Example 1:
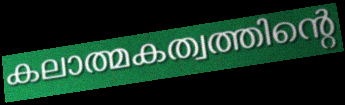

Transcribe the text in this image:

കലാത്മകത്വത്തിന്റെ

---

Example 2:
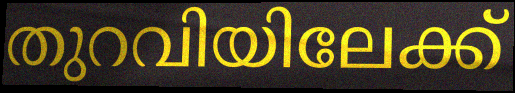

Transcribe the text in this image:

തുറവിയിലേക്ക്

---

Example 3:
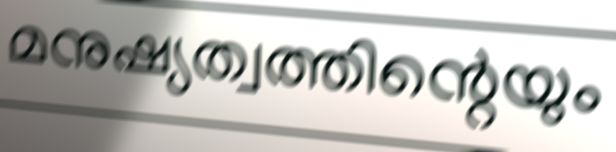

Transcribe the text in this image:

മനുഷ്യത്വത്തിന്റെയും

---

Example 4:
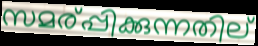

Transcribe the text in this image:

സമര്പ്പിക്കുന്നതില്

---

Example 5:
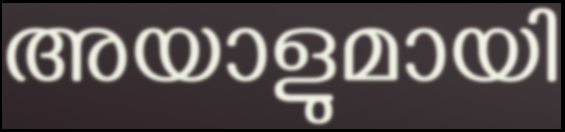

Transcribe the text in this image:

അയാളുമായി